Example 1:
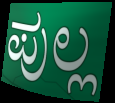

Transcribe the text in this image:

ಪುಲ್ಲ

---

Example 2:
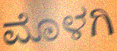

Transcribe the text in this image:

ಮೊಳಗಿ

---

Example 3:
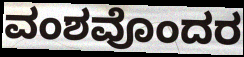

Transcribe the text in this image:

ವಂಶವೊಂದರ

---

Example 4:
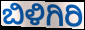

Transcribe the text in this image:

ಬಿಳಿಗಿರಿ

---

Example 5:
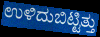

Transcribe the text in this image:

ಉಳಿದುಬಿಟ್ಟಿತ್ತು